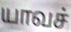
யாவச்